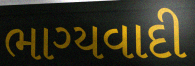
ભાગ્યવાદી